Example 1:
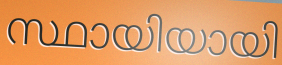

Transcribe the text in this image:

സ്ഥായിയായി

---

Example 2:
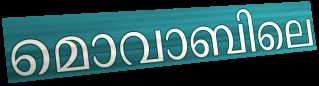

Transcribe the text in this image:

മൊവാബിലെ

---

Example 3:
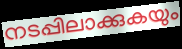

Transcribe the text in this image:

നടപ്പിലാക്കുകയും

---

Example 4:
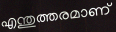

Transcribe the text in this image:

എന്തുത്തരമാണ്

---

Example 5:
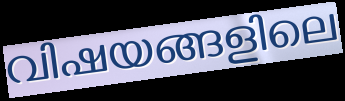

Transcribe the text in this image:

വിഷയങ്ങളിലെ